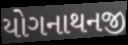
યોગનાથનજી